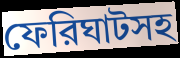
ফেরিঘাটসহ